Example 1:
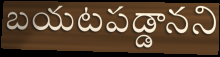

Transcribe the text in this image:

బయటపడ్డానని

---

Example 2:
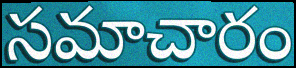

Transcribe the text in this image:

సమాచారం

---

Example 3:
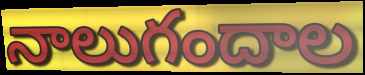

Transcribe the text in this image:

నాలుగందాల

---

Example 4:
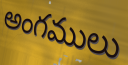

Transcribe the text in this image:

అంగములు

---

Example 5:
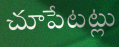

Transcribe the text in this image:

చూపేటట్లు